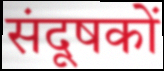
संदूषकों